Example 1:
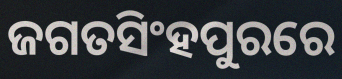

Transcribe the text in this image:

ଜଗତସିଂହପୁରରେ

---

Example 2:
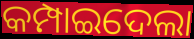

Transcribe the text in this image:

କମ୍ପାଇଦେଲା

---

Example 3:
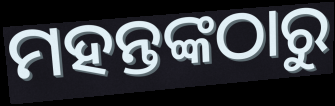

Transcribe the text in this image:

ମହନ୍ତଙ୍କଠାରୁ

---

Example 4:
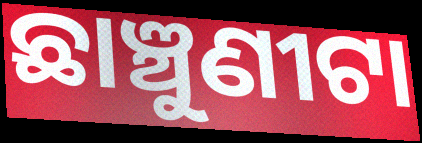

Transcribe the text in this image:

ଛାଞ୍ଚୁଣୀଟା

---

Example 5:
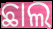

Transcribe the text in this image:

ଛାଲ